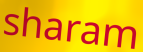
sharam